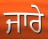
ਜਾਰੇ